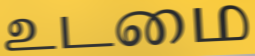
உடமை